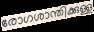
രോഗശാന്തിക്കുള്ള